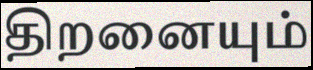
திறனையும்